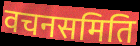
वचनसमिति